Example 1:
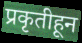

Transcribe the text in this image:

प्रकृतीहून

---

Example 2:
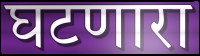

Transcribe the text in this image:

घटणारा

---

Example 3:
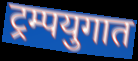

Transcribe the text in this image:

ट्रम्पयुगात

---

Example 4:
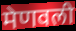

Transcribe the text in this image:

मेणवली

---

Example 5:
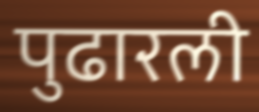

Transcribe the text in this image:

पुढारली